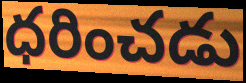
ధరించడు